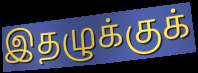
இதழுக்குக்